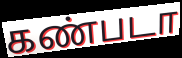
கண்படா